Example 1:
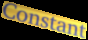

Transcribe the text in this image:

Constant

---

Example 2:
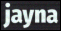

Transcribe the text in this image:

jayna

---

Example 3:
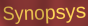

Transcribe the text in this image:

Synopsys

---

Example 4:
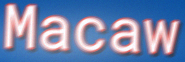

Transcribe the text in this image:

Macaw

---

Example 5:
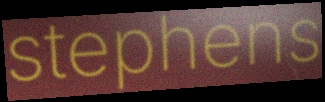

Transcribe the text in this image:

stephens